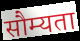
सौम्यता